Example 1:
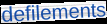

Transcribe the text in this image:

defilements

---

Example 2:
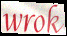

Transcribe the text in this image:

wrok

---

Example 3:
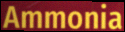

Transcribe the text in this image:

Ammonia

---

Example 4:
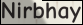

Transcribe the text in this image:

Nirbhay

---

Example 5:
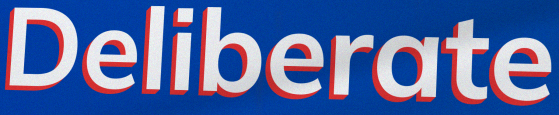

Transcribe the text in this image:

Deliberate